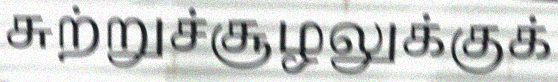
சுற்றுச்சூழலுக்குக்